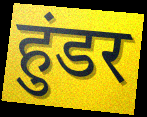
हुंडर